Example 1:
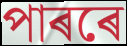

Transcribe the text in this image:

পাৰৰে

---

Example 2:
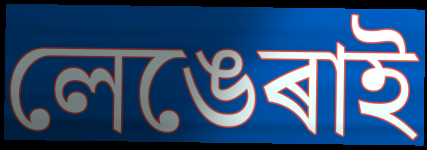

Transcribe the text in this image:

লেঙেৰাই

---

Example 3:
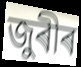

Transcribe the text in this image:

জুৰীৰ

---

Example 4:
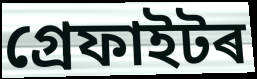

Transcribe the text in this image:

গ্ৰেফাইটৰ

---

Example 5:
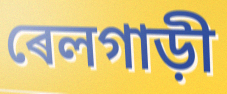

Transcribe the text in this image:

ৰেলগাড়ী